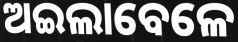
ଅଇଲାବେଳେ